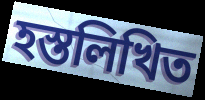
হস্তলিখিত